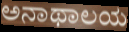
ಅನಾಥಾಲಯ